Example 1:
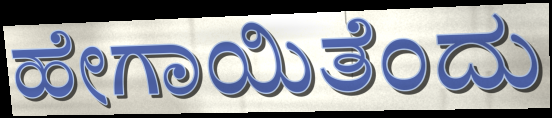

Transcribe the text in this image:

ಹೇಗಾಯಿತೆಂದು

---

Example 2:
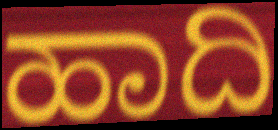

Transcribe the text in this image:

ಹಾದಿ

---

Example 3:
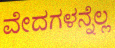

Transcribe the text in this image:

ವೇದಗಳನ್ನೆಲ್ಲ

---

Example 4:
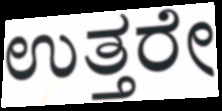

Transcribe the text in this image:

ಉತ್ತರೇ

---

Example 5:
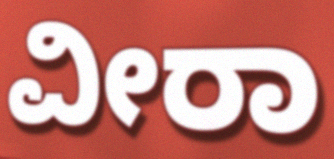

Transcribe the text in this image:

ವೀರಾ